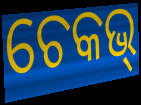
ଚେକଭ୍